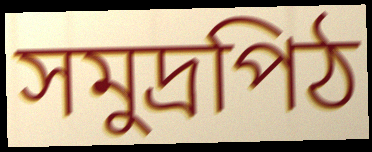
সমুদ্রপিঠ